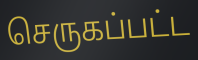
செருகப்பட்ட